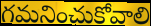
గమనించుకోవాలి